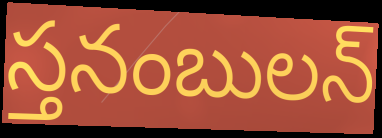
స్తనంబులన్